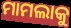
ମାମଲାକୁ